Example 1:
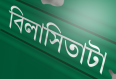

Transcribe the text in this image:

বিলাসিতাটা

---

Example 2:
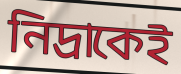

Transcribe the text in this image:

নিদ্রাকেই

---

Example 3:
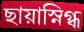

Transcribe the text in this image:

ছায়াস্নিগ্ধ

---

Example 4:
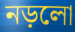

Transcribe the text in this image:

নড়লো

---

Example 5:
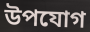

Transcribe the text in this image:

উপযোগ